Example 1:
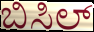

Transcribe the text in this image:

ಬಿಸಿಲ್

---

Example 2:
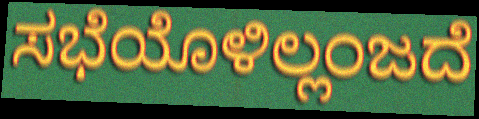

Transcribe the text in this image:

ಸಭೆಯೊಳಿಲ್ಲಂಜದೆ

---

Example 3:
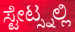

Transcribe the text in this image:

ಸ್ಟೇಟ್ಸ್ನಲ್ಲಿ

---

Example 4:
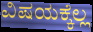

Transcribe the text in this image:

ವಿಷಯಕ್ಕೆಲ್ಲ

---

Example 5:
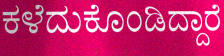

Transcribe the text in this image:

ಕಳೆದುಕೊಂಡಿದ್ದಾರೆ